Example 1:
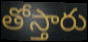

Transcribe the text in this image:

తోస్తారు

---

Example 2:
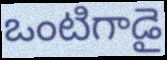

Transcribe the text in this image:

ఒంటిగాడై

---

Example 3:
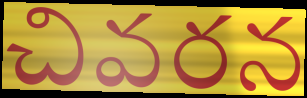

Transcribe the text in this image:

చివరన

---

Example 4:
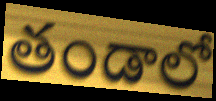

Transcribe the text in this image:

తండాలో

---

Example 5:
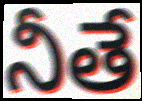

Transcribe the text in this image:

నీతే